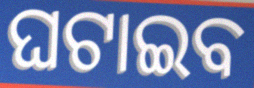
ଘଟାଇବ